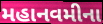
મહાનવમીના